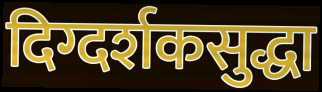
दिग्दर्शकसुद्धा